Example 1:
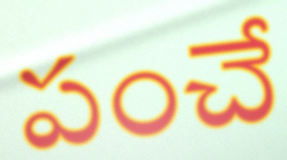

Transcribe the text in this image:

పంచే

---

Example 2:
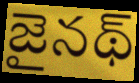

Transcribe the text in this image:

జైనథ్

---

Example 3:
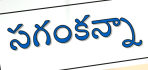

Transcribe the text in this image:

సగంకన్నా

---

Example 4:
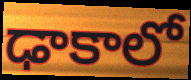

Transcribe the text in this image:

ఢాకాలో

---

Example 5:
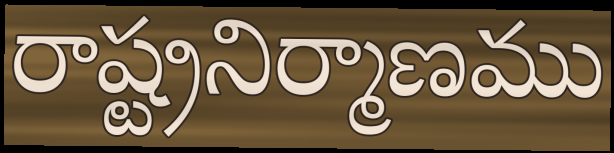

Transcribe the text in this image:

రాష్ట్రనిర్మాణము